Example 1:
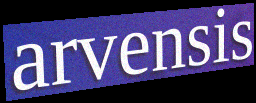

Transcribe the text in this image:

arvensis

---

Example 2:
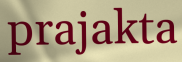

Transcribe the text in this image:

prajakta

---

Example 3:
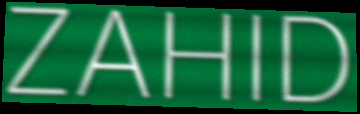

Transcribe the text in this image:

ZAHID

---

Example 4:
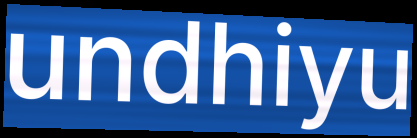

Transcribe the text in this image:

undhiyu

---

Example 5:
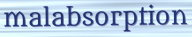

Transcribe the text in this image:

malabsorption